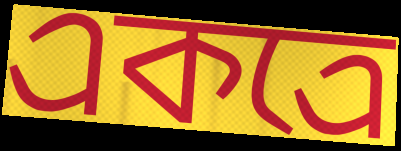
একত্ৰে